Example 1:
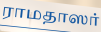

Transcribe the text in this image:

ராமதாஸர்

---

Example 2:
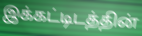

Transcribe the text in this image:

இக்கட்டிடத்தின்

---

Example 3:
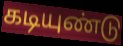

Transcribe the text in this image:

கடியுண்டு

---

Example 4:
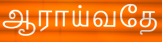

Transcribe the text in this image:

ஆராய்வதே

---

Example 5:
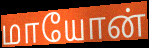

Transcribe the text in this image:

மாயோன்